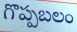
గొప్పబలం